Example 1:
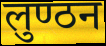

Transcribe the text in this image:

लुण्ठन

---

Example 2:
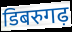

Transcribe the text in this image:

डिबरुगढ़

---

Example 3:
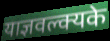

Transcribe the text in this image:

याज्ञवल्क्यके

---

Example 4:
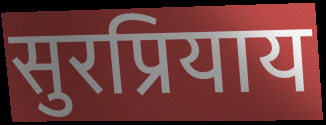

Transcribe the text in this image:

सुरप्रियाय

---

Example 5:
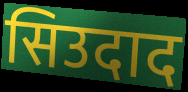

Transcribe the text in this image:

सिउदाद